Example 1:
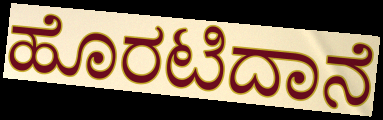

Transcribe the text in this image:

ಹೊರಟಿದಾನೆ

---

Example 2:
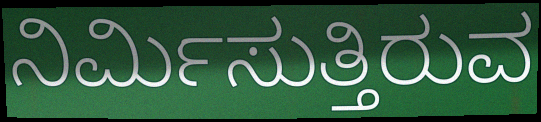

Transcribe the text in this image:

ನಿರ್ಮಿಸುತ್ತಿರುವ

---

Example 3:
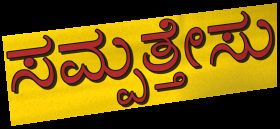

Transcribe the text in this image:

ಸಮ್ಪತ್ತೇಸು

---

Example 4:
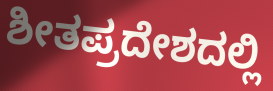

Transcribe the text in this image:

ಶೀತಪ್ರದೇಶದಲ್ಲಿ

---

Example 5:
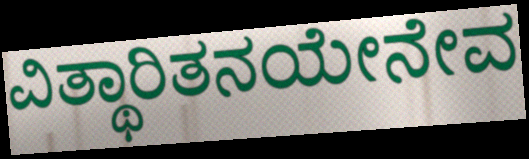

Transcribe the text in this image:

ವಿತ್ಥಾರಿತನಯೇನೇವ